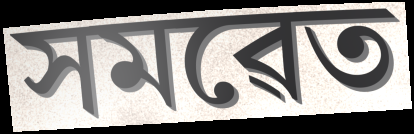
সমৱেত